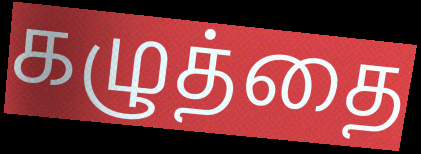
கழுத்தை